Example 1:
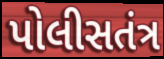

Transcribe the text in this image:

પોલીસતંત્ર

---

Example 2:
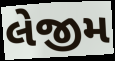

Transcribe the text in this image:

લેજીમ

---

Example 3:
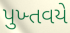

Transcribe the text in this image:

પુખ્તવયે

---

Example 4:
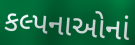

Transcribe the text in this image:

કલ્પનાઓનાં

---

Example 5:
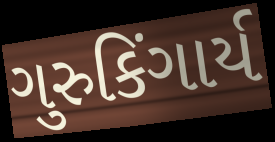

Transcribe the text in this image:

ગુરુકિંગાર્ય